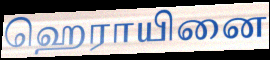
ஹெராயினை